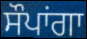
ਸੌਪਾਂਗਾ